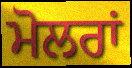
ਮੋਲਰਾਂ